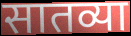
सातव्या